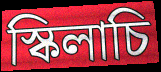
স্কিলাচি